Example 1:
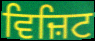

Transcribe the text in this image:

ਵਿਜ਼ਿਟ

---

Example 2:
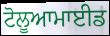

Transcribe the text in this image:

ਟੋਲੂਆਮਾਈਡ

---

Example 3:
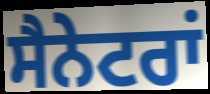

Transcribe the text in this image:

ਸੈਨੇਟਰਾਂ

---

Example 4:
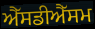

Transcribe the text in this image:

ਐੱਸਡੀਐੱਸਮ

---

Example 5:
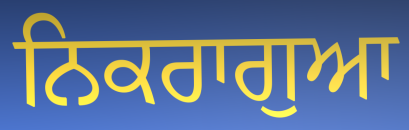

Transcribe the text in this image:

ਨਿਕਰਾਗੁਆ